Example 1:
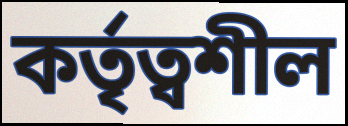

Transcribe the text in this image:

কর্তৃত্বশীল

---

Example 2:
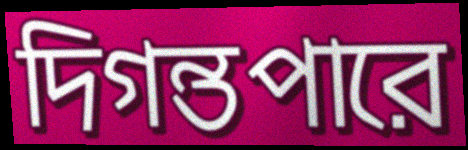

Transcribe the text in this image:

দিগন্তপারে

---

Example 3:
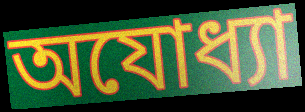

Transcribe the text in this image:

অযোধ্যা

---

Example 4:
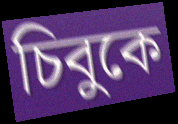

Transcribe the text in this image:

চিবুকে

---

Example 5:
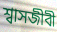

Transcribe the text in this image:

শ্বাসজীবী